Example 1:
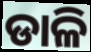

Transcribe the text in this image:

ଡାଳି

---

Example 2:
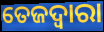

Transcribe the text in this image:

ତେଜଦ୍ୱାରା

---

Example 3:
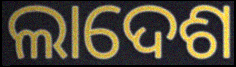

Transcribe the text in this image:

ଲାଦେଶ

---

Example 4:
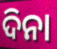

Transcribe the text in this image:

ଦିନା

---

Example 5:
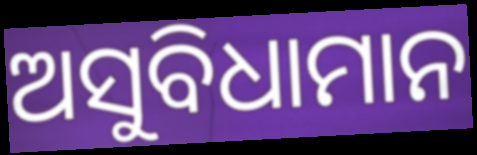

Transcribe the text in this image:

ଅସୁବିଧାମାନ